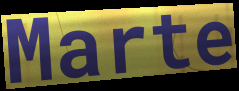
Marte